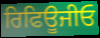
ਰਿਫਿਊਜੀਓ